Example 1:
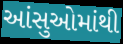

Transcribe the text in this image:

આંસુઓમાંથી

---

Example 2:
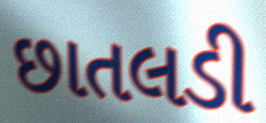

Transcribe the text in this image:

છાતલડી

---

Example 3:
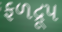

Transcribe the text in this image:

ફળદ્રૂપ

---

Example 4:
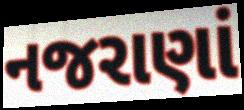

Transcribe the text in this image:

નજરાણાં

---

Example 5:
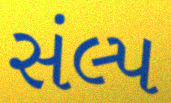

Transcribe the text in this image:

સંલ્પ